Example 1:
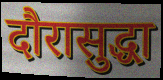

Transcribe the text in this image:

दौरासुद्धा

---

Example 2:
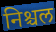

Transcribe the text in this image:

निश्चल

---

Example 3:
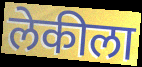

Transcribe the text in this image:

लेकीला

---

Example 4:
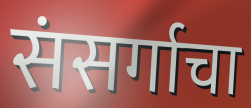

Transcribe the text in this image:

संसर्गाचा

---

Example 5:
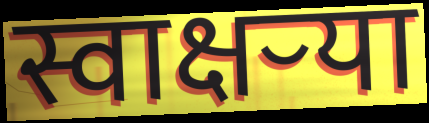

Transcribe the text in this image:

स्वाक्षऱ्या